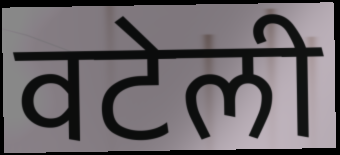
वटेली